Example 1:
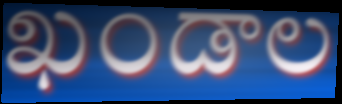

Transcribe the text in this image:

ఖండాల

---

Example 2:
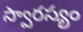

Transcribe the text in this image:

స్వారస్యం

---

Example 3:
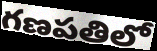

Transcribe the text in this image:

గణపతిలో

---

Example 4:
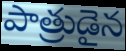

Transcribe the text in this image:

పాత్రుడైన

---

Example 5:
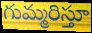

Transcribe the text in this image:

గుమ్మరిస్తూ